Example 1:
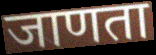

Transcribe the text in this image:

जाणता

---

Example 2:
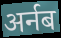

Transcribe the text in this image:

अर्नब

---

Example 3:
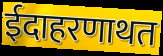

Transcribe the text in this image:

ईदाहरणाथत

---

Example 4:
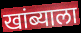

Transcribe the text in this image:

खांब्याला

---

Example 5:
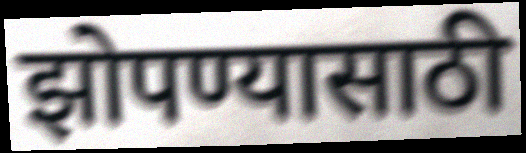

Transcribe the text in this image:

झोपण्यासाठी